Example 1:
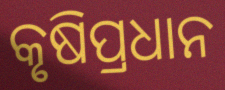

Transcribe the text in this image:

କୃଷିପ୍ରଧାନ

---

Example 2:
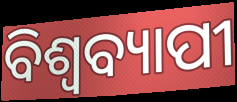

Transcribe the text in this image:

ବିଶ୍ଵବ୍ୟାପୀ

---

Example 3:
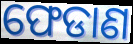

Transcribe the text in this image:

ଫେଡାଣ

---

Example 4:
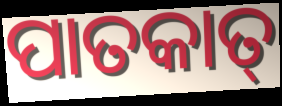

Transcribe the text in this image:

ପାତକାତ୍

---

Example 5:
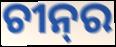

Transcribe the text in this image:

ଚୀନ୍‌ର